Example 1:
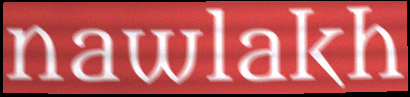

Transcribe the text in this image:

nawlakh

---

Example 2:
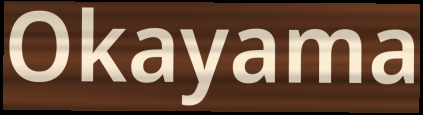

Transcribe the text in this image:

Okayama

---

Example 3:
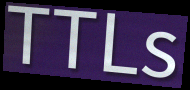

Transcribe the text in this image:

TTLs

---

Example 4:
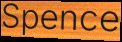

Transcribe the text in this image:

Spence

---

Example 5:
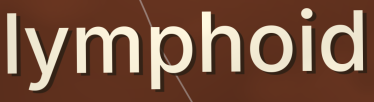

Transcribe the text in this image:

lymphoid